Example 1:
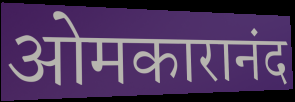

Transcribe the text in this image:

ओमकारानंद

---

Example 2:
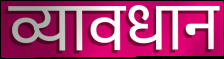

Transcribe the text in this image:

व्यावधान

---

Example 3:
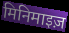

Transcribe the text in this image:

मिनिमाइज़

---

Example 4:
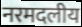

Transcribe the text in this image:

नरमदलीय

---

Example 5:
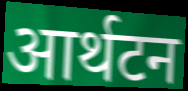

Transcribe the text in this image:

आर्थटन